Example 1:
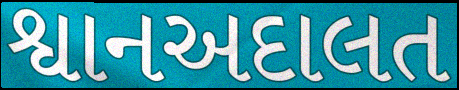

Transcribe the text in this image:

શ્વાનઅદાલત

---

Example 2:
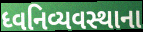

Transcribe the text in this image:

ધ્વનિવ્યવસ્થાના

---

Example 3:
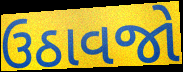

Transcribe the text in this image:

ઉઠાવજો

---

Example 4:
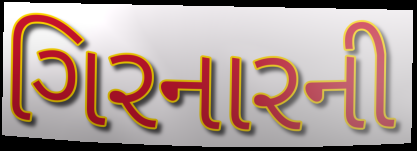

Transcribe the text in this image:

ગિરનારની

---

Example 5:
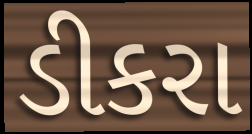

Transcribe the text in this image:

ડીકરા